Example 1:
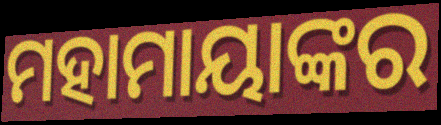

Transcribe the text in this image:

ମହାମାୟାଙ୍କର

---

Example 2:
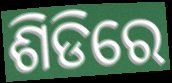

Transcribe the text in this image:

ଶିଡିରେ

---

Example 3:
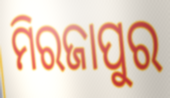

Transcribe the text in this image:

ମିରଜାପୁର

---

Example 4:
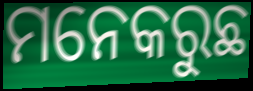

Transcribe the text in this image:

ମନେକରୁଛ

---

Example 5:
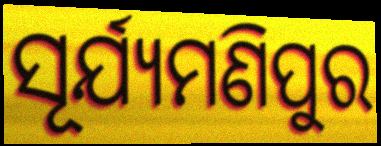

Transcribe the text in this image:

ସୂର୍ଯ୍ୟମଣିପୁର